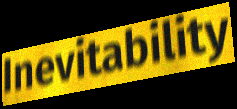
Inevitability